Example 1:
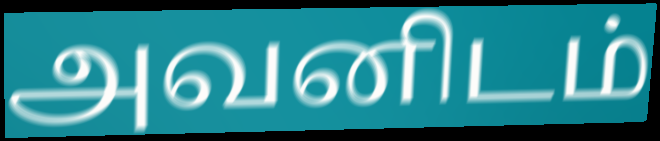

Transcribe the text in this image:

அவனிடம்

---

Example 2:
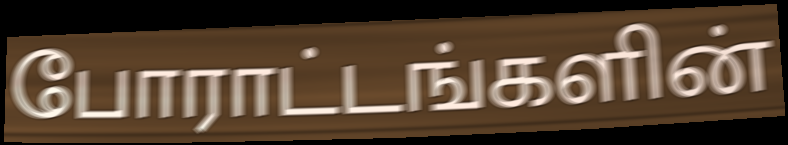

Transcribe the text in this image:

போராட்டங்களின்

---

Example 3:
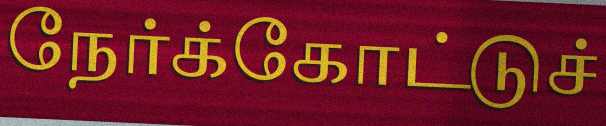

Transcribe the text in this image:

நேர்க்கோட்டுச்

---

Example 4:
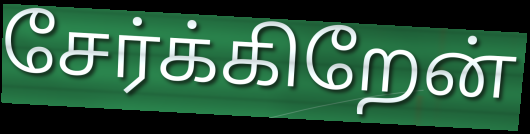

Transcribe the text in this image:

சேர்க்கிறேன்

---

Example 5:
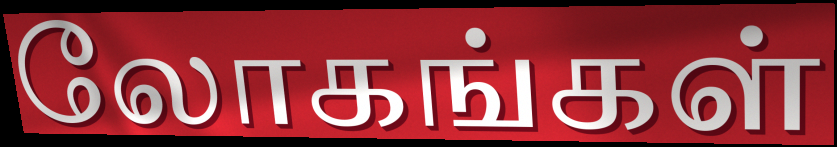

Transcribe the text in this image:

லோகங்கள்